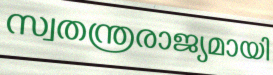
സ്വതന്ത്രരാജ്യമായി